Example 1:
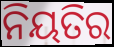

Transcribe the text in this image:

ନିୟତିର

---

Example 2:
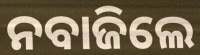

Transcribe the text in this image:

ନବାଜିଲେ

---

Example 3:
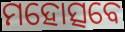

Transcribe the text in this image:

ମହୋତ୍ସବେ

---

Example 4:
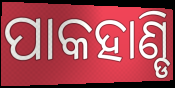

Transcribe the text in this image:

ପାକହାଣ୍ଡି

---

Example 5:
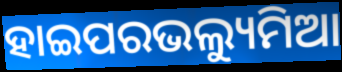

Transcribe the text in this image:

ହାଇପରଭଲ୍ୟୁମିଆ